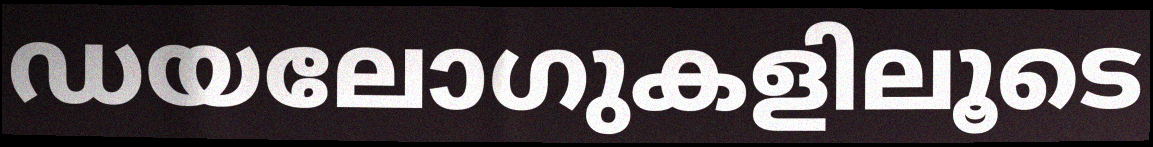
ഡയലോഗുകളിലൂടെ